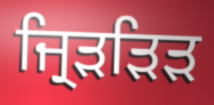
ਜ੍ਰਿੜੜਿੜ